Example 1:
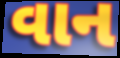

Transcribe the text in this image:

વાન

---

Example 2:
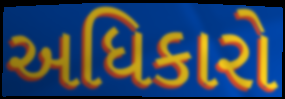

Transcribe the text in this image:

અધિકારો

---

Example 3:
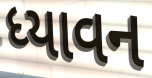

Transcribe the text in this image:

ધ્યાવન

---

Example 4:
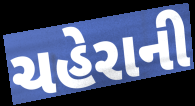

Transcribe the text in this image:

ચહેરાની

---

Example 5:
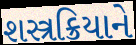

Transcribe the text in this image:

શસ્ત્રક્રિયાને